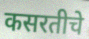
कसरतीचे